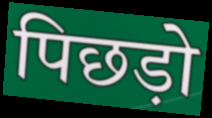
पिछड़ो